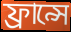
ফ্রান্সে